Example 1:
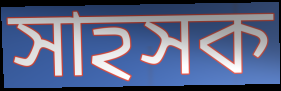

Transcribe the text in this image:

সাহসক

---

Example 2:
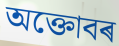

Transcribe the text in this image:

অক্তোবৰ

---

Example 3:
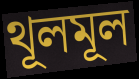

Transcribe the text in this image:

থূলমূল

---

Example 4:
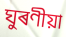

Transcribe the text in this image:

ঘুৰণীয়া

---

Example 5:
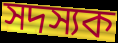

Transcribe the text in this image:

সদস্যক